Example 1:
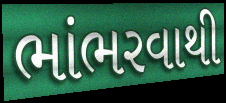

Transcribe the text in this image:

ભાંભરવાથી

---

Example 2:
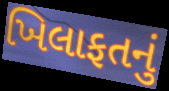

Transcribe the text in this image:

ખિલાફતનું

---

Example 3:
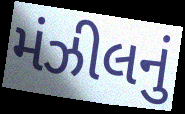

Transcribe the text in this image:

મંઝીલનું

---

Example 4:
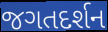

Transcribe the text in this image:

જગતદર્શન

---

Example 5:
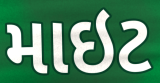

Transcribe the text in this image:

માઇટ